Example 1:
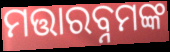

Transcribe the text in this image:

ମତ୍ତାରବ୍ନମଙ୍କ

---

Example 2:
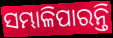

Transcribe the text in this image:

ସମ୍ଭାଳିପାରନ୍ତି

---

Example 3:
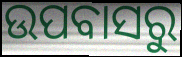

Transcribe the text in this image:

ଉପବାସରୁ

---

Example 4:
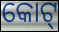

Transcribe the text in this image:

କୋଟ୍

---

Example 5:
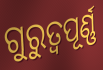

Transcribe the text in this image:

ଗୁରୁତ୍ବପୂର୍ଣ୍ଣ